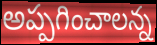
అప్పగించాలన్న